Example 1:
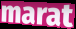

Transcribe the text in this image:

marat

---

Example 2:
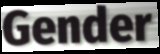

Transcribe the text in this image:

Gender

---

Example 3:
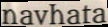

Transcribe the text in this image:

navhata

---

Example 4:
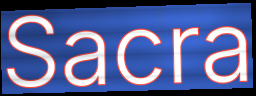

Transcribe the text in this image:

Sacra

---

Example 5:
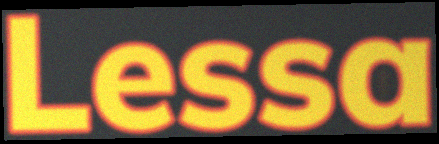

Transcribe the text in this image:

Lessa